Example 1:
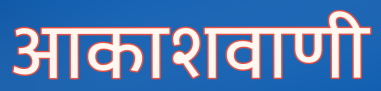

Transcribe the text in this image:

आकाशवाणी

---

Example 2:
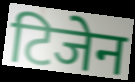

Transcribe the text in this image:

टिजेन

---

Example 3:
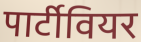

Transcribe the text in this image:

पार्टीवियर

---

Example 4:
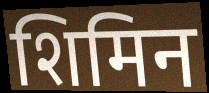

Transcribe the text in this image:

शिमिन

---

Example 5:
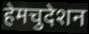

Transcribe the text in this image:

हेमचुदेशन